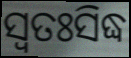
ସ୍ବତଃସିଦ୍ଧ